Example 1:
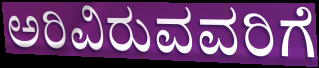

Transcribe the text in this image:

ಅರಿವಿರುವವರಿಗೆ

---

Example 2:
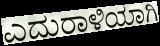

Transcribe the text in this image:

ಎದುರಾಳಿಯಾಗಿ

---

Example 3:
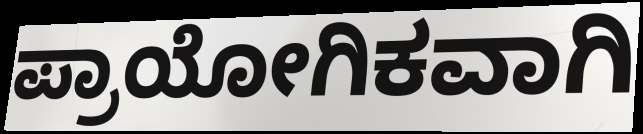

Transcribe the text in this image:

ಪ್ರಾಯೋಗಿಕವಾಗಿ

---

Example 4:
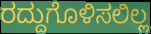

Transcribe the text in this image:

ರದ್ದುಗೊಳಿಸಲಿಲ್ಲ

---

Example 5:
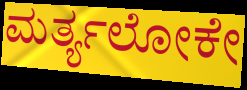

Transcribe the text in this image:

ಮರ್ತ್ಯಲೋಕೇ